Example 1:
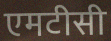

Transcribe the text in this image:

एमटीसी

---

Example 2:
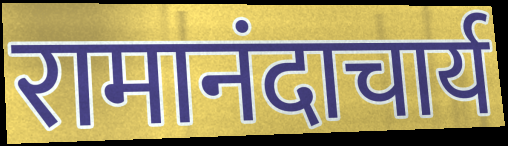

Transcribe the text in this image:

रामानंदाचार्य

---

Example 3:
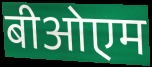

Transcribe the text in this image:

बीओएम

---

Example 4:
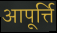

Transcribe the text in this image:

आपूर्त्ति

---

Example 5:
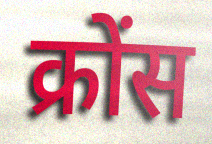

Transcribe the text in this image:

क्रोंस